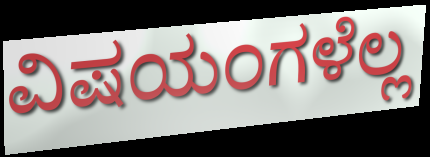
ವಿಷಯಂಗಳೆಲ್ಲ